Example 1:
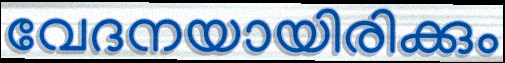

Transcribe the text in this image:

വേദനയായിരിക്കും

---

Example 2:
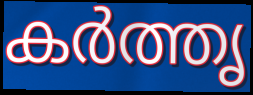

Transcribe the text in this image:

കർത്തൃ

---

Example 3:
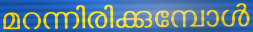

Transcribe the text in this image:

മറന്നിരിക്കുമ്പോൾ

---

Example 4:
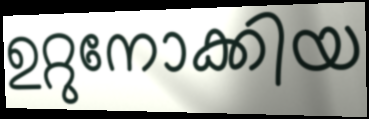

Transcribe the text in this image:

ഉറ്റുനോക്കിയ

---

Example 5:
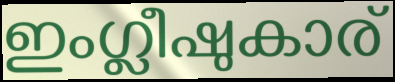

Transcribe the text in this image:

ഇംഗ്ലീഷുകാര്